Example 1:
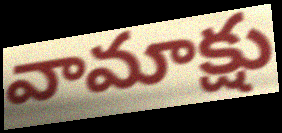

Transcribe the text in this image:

వామాక్షు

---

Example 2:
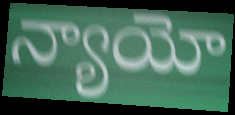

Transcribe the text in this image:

న్యాయో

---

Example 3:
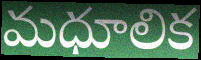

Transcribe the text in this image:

మధూలిక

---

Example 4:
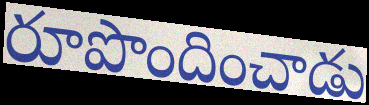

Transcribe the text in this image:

రూపొందించాడు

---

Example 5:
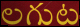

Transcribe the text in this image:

లగుట